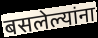
बसलेल्यांना